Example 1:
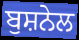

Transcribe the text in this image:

ਬੁਸ਼ਨੇਲ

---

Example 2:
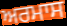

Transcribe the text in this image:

ਅਰਮਾਸ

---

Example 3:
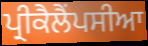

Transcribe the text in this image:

ਪ੍ਰੀਕੈਲੈਂਪਸੀਆ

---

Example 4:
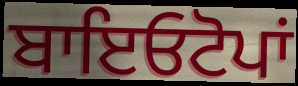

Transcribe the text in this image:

ਬਾਇਓਟੋਪਾਂ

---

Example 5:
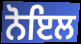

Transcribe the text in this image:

ਨੋਇਲ